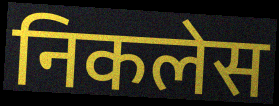
निकलेस